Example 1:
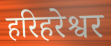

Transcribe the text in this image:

हरिहरेश्वर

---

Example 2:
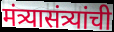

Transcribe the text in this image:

मंत्र्यासंत्र्यांची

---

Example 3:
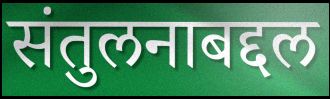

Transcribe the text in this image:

संतुलनाबद्दल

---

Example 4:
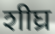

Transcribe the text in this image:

शीघ्र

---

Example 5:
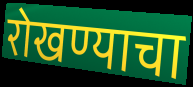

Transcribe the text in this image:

रोखण्याचा